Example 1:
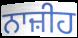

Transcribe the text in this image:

ਨਾਜ਼ੀਹ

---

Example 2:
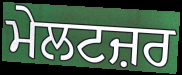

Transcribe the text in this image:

ਮੇਲਟਜ਼ਰ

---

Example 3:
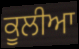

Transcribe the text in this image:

ਕੂਲੀਆ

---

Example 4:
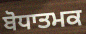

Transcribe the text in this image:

ਬੋਧਾਤਮਕ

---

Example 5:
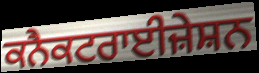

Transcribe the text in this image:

ਕਨੈਕਟਰਾਈਜ਼ੇਸ਼ਨ